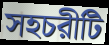
সহচরীটি